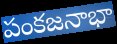
పంకజనాభా